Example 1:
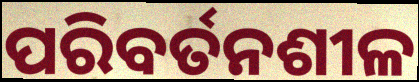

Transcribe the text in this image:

ପରିବର୍ତନଶୀଳ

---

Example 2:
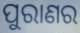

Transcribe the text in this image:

ପୁରାଣର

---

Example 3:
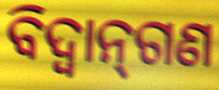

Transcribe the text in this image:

ବିଦ୍ୱାନ୍‌ଗଣ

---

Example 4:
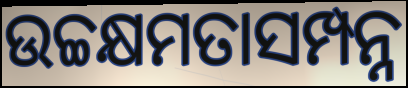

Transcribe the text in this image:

ଉଚ୍ଚକ୍ଷମତାସମ୍ପନ୍ନ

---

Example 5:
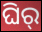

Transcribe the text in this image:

ଘିର୍